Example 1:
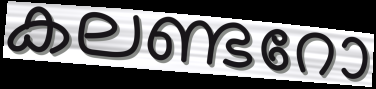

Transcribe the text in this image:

കലണ്ടറോ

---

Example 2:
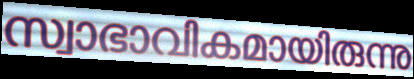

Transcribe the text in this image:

സ്വാഭാവികമായിരുന്നു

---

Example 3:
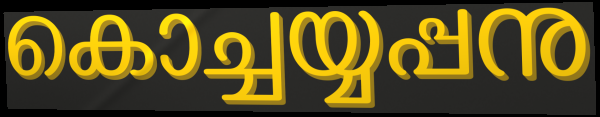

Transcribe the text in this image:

കൊച്ചയ്യപ്പനു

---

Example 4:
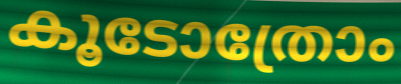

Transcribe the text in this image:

കൂടോത്രോം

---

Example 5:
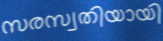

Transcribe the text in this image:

സരസ്വതിയായി